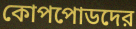
কোপপোডদের